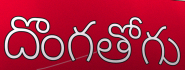
దొంగతోగు